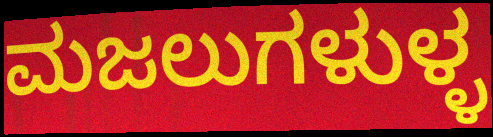
ಮಜಲುಗಳುಳ್ಳ